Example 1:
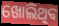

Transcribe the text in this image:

ଖୋଲିଥିବ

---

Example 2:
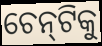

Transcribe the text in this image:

ଚେନ୍‌ଟିକୁ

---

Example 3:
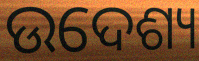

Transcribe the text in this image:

ଉଦେଶ୍ୟ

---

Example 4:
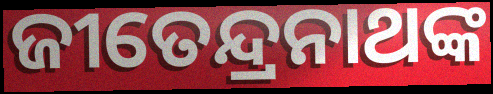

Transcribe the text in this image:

ଜୀତେନ୍ଦ୍ରନାଥଙ୍କ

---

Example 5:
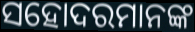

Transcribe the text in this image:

ସହୋଦରମାନଙ୍କ